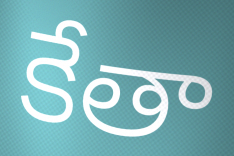
కేతా